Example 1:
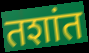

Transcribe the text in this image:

तशांत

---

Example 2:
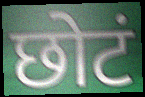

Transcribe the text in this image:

छोटं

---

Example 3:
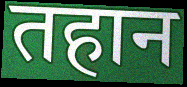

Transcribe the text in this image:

तहान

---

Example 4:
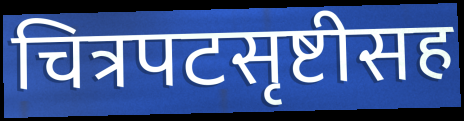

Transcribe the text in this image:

चित्रपटसृष्टीसह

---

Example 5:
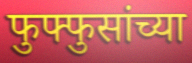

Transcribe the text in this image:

फुफ्फुसांच्या